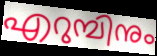
എറുമ്പിനും